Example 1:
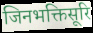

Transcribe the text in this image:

जिनभक्तिसूरि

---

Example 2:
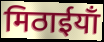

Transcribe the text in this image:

मिठाईयाँ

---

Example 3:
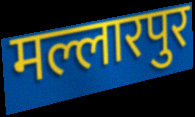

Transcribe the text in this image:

मल्लारपुर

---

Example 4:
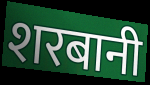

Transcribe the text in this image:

शरबानी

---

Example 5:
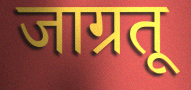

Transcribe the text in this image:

जाग्रतू